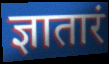
ज्ञातारं